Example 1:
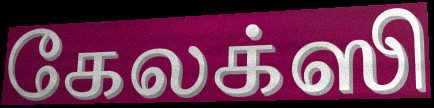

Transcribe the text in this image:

கேலக்ஸி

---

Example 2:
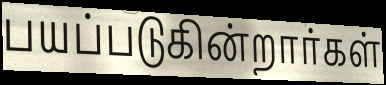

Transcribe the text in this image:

பயப்படுகின்றார்கள்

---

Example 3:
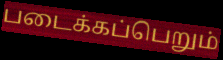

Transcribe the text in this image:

படைக்கப்பெறும்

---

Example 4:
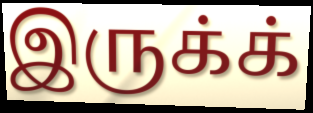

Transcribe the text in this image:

இருக்க்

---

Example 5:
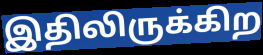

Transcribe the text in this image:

இதிலிருக்கிற